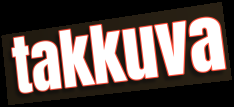
takkuva